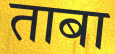
ताबा